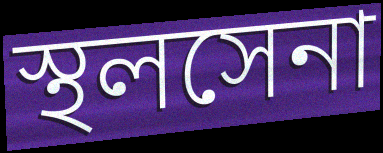
স্থলসেনা